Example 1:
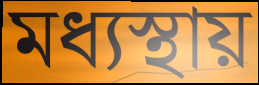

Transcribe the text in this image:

মধ্যস্থায়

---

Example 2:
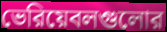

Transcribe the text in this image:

ভেরিয়েবলগুলোর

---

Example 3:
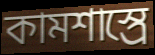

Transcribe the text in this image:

কামশাস্ত্রে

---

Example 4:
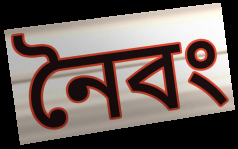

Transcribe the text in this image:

নৈবং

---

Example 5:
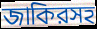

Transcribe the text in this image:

জাকিরসহ